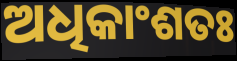
ଅଧିକାଂଶତଃ